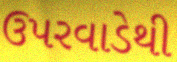
ઉપરવાડેથી